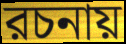
রচনায়